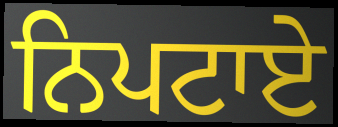
ਨਿਪਟਾਏ